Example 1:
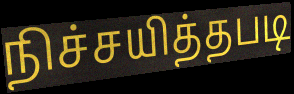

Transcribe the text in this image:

நிச்சயித்தபடி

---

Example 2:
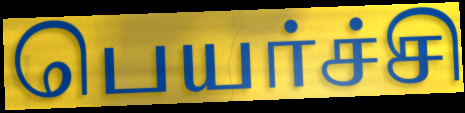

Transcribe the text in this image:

பெயர்ச்சி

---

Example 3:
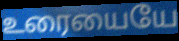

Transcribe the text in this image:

உரையையே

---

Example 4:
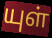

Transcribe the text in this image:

யுள்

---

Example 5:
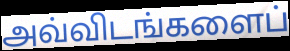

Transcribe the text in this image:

அவ்விடங்களைப்